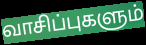
வாசிப்புகளும்